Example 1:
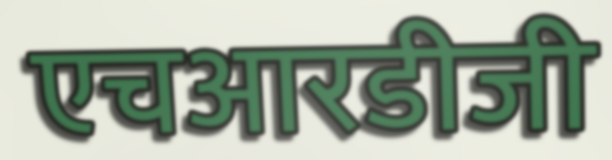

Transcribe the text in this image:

एचआरडीजी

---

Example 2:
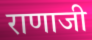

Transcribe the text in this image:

राणाजी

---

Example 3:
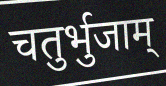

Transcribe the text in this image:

चतुर्भुजाम्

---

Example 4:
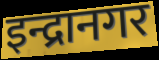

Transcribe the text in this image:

इन्द्रानगर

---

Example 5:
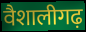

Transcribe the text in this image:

वैशालीगढ़